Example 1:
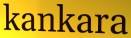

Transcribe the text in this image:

kankara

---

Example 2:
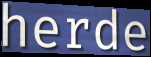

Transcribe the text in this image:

herde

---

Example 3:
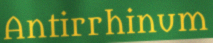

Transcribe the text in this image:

Antirrhinum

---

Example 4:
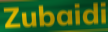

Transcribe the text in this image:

Zubaidi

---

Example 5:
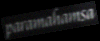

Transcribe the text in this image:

paramahamsa